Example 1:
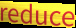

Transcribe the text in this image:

reduce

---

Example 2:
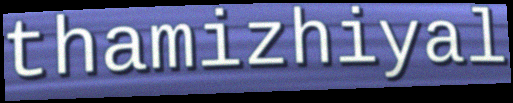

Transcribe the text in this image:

thamizhiyal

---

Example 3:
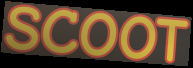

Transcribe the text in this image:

SCOOT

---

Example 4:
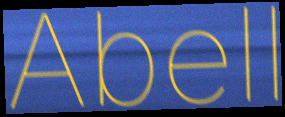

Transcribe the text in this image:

Abell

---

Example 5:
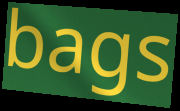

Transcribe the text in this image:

bags